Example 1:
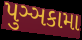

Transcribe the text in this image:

પુઞ્ઞકામા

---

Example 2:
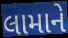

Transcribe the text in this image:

લામાને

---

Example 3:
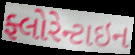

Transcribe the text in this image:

ફ્લોરેન્ટાઇન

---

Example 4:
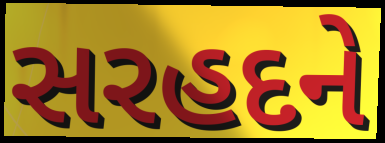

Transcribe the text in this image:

સરહદને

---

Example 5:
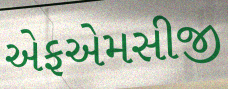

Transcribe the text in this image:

એફએમસીજી